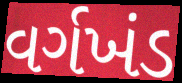
વર્ગખંડ